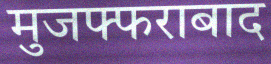
मुजफ्फराबाद